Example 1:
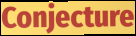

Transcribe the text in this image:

Conjecture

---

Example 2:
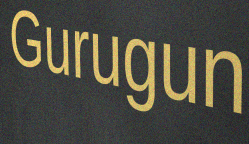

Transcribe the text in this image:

Gurugun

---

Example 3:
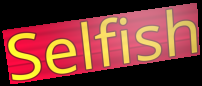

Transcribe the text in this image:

Selfish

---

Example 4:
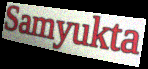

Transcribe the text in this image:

Samyukta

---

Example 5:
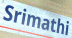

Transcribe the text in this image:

Srimathi